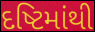
દષ્ટિમાંથી